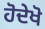
ਹੋਦੇਖੋ